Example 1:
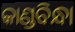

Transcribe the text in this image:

କାଣ୍ଡବିନ୍ଧା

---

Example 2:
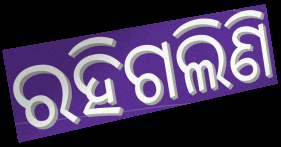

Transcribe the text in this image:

ରହିଗଲିଣି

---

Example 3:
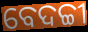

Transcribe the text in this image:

ବେଦଚ୍ଚୀ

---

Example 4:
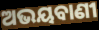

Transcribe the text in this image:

ଅଭୟବାଣୀ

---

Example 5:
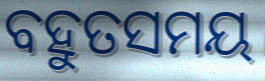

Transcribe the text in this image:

ବହୁତସମୟ